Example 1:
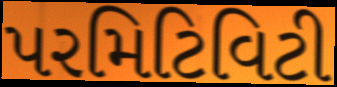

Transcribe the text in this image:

પરમિટિવિટી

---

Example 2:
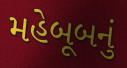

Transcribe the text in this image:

મહેબૂબનું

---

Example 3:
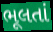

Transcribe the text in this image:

ભૂલતાં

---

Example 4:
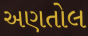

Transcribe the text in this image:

અણતોલ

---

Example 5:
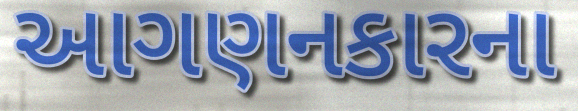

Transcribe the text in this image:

આગણનકારના